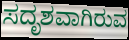
ಸದೃಶವಾಗಿರುವ